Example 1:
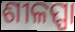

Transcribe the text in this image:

ଶୀଳପ୍ପା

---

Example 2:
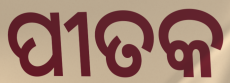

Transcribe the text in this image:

ପୀତକ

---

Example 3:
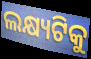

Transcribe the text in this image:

ଲକ୍ଷ୍ୟଟିକୁ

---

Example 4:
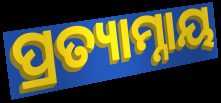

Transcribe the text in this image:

ପ୍ରତ୍ୟାମ୍ନାୟ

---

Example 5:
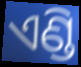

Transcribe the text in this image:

ଏଣ୍ଡି